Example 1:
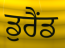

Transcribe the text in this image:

ਡੁਰੈਂਡ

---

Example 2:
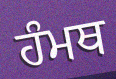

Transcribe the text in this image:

ਹੰਮਥ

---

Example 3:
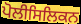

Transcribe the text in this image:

ਪੋਲੀਸਿਲਿਕਨ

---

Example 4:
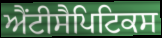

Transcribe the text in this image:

ਐਂਟੀਸੈਪਿਟਿਕਸ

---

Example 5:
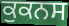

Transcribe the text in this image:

ਕੁਕਨਸ